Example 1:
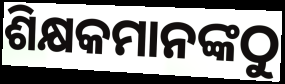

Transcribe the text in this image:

ଶିକ୍ଷକମାନଙ୍କଠୁ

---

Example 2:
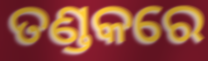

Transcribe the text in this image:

ତଣ୍ଡକରେ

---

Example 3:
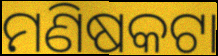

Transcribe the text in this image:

ମଣିଷକଟା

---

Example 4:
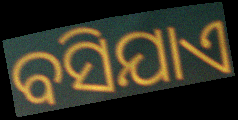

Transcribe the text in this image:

ବସିଯାଏ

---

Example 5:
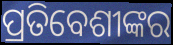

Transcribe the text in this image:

ପ୍ରତିବେଶୀଙ୍କର